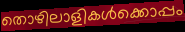
തൊഴിലാളികൾക്കൊപ്പം